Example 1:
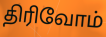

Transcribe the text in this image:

திரிவோம்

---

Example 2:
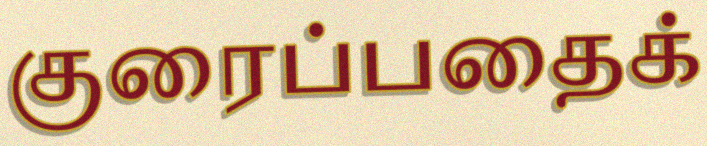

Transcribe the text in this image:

குரைப்பதைக்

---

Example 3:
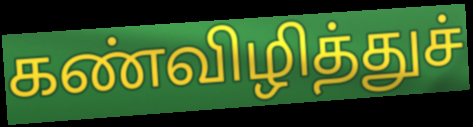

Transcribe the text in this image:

கண்விழித்துச்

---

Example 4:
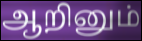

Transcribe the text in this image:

ஆறினும்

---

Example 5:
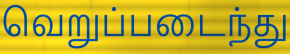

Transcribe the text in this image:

வெறுப்படைந்து